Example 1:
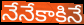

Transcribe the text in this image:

నేనేకాకినే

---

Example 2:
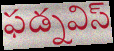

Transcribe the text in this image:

ఫడ్నవిస్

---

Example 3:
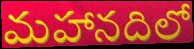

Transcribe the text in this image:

మహానదిలో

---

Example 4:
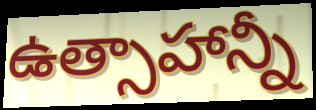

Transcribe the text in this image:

ఉత్సాహాన్నీ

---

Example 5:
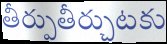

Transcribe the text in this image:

తీర్పుతీర్చుటకు